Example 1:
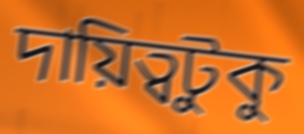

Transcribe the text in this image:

দায়িত্বটুকু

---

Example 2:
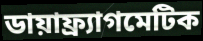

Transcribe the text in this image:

ডায়াফ্র্যাগমেটিক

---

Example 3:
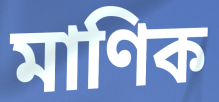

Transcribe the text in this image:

মাণিক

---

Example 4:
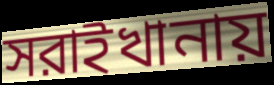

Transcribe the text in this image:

সরাইখানায়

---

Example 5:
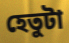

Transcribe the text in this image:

হেতুটা